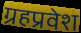
ग्रहप्रवेश